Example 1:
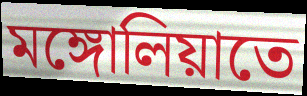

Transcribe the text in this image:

মঙ্গোলিয়াতে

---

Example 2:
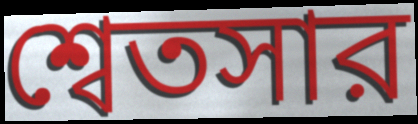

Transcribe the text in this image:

শ্বেতসার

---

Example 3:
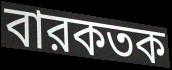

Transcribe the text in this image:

বারকতক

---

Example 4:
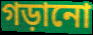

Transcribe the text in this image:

গড়ানো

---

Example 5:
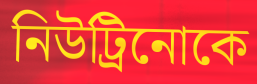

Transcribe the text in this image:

নিউট্রিনোকে